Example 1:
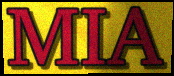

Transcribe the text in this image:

MIA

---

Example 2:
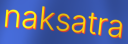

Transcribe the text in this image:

naksatra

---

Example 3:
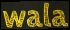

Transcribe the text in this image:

wala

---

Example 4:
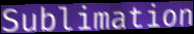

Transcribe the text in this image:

Sublimation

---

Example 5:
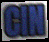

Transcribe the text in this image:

CIN